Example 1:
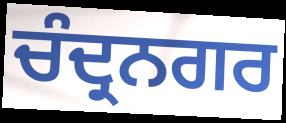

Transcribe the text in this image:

ਚੰਦ੍ਰਨਗਰ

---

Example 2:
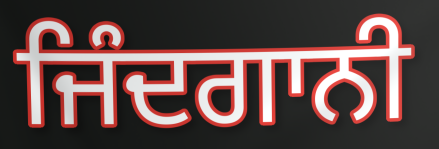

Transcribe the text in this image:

ਜਿੰਦਗਾਨੀ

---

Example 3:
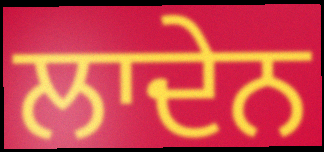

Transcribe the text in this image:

ਲਾਦੇਨ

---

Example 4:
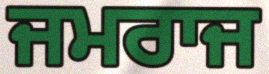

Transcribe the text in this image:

ਜਮਰਾਜ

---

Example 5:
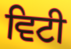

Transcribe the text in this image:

ਵਿਟੀ